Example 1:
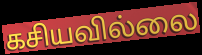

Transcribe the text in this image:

கசியவில்லை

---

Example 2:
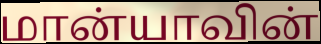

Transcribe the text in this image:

மான்யாவின்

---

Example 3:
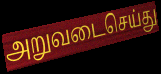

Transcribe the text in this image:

அறுவடைசெய்து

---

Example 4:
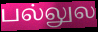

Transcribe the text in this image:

பல்லுல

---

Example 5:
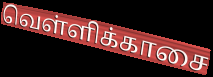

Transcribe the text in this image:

வெள்ளிக்காசை